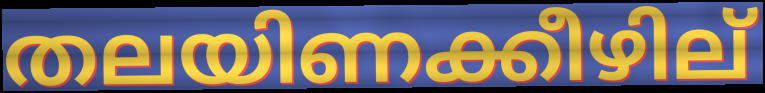
തലയിണക്കീഴില്